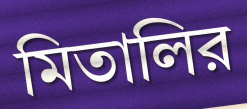
মিতালির